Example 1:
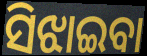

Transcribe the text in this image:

ସିଝାଇବା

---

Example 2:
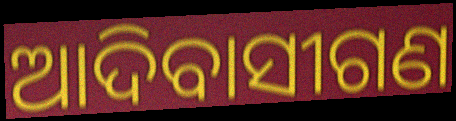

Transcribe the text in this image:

ଆଦିବାସୀଗଣ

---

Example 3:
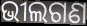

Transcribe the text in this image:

ଭୀଲଗଣ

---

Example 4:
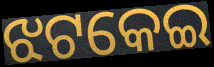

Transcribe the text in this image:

ଝଟକେଇ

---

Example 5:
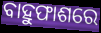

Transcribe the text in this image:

ବାହୁଫାଶରେ